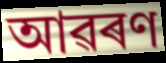
আৱৰণ